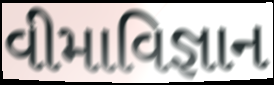
વીમાવિજ્ઞાન